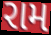
રામ